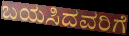
ಬಯಸಿದವರಿಗೆ